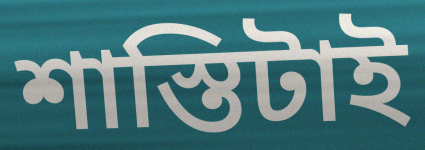
শাস্তিটাই